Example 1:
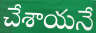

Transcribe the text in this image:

చేశాయనే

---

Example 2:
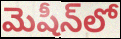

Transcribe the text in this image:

మెషీన్‌లో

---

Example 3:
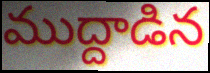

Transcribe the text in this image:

ముద్దాడిన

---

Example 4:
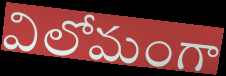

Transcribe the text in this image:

విలోమంగా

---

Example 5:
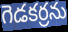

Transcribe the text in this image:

గెడకర్రను